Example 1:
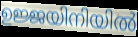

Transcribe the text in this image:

ഉജ്ജയിനിയിൽ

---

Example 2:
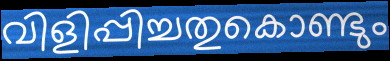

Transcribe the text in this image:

വിളിപ്പിച്ചതുകൊണ്ടും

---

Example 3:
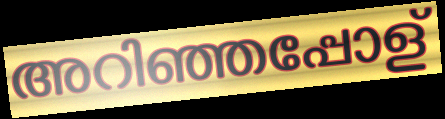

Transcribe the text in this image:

അറിഞ്ഞപ്പോള്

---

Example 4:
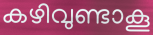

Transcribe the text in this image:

കഴിവുണ്ടാകൂ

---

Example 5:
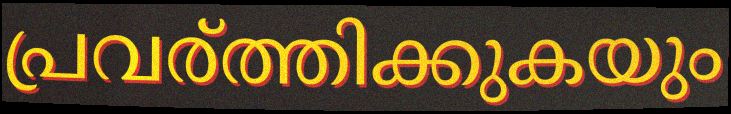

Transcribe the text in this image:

പ്രവര്ത്തിക്കുകയും